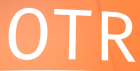
OTR